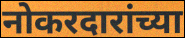
नोकरदारांच्या